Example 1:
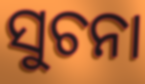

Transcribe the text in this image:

ସୁଚନା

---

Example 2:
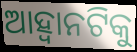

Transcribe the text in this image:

ଆହ୍ଵାନଟିକୁ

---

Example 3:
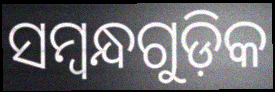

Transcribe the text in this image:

ସମ୍ବନ୍ଧଗୁଡ଼ିକ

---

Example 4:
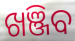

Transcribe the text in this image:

ଖଞ୍ଜିବ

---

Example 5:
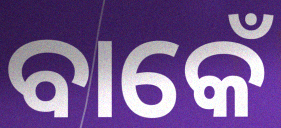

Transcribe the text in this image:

ବାକେଁ